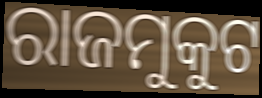
ରାଜମୁକୁଟ